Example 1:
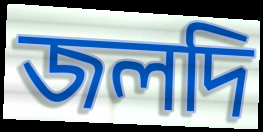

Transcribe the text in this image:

জলদি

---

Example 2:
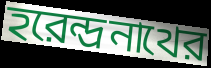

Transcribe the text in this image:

হরেন্দ্রনাথের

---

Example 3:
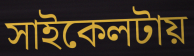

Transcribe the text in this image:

সাইকেলটায়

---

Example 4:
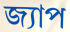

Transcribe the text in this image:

জ্যাপ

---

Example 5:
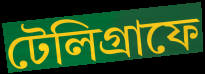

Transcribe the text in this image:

টেলিগ্রাফে